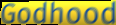
Godhood